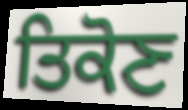
ਤਿਕੋਣ